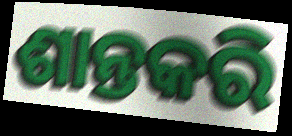
ଶାନ୍ତକରି